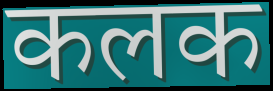
कलक